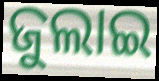
ଜୁଲାଇ